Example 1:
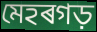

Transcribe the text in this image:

মেহৰগড়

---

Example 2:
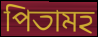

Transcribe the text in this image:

পিতামহ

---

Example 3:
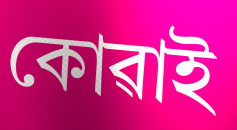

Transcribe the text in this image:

কোৱাই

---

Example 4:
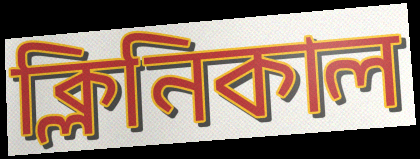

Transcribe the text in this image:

ক্লিনিকাল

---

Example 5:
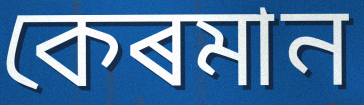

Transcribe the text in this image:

কেৰমান